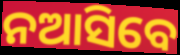
ନଆସିବେ